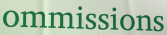
ommissions